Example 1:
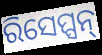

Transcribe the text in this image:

ରିସେପ୍ସନ୍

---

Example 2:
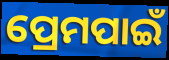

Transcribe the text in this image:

ପ୍ରେମପାଇଁ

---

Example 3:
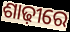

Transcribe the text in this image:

ଶାଢ଼ୀରେ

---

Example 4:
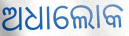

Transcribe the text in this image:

ଅଧାଲୋକ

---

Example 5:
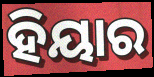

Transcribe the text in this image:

ହିୟାର